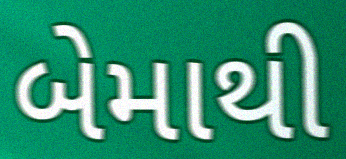
બેમાથી